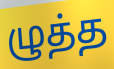
ழுத்த